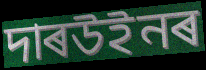
দাৰউইনৰ